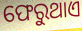
ଫେରୁଥାଏ